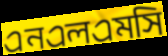
এনএলএমসি